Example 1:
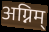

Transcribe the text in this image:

अग्निम्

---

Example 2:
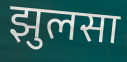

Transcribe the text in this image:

झुलसा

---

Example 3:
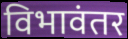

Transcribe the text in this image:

विभावंतर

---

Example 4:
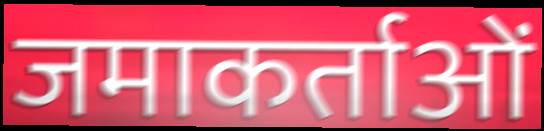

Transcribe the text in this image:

जमाकर्ताओं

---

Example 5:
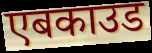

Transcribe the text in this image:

एबकाउड